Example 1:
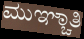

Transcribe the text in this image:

ಮುಞ್ಚಾತಿ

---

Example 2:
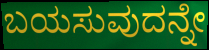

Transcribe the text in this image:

ಬಯಸುವುದನ್ನೇ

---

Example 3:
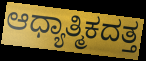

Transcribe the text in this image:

ಆಧ್ಯಾತ್ಮಿಕದತ್ತ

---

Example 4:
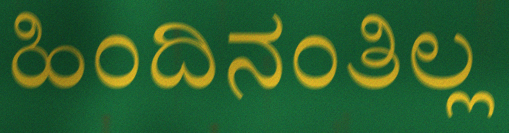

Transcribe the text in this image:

ಹಿಂದಿನಂತಿಲ್ಲ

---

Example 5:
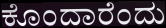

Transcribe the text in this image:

ಕೊಂದಾರೆಂದು